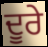
ਦੂਰੇ